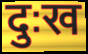
दुःख